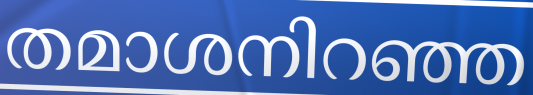
തമാശനിറഞ്ഞ